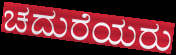
ಚದುರೆಯರು